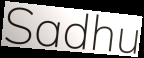
Sadhu